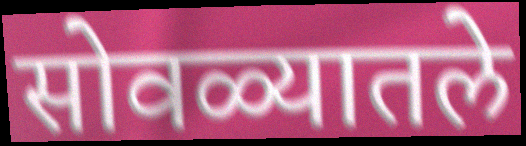
सोवळ्यातले